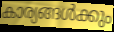
കാര്യങ്ങൾക്കും